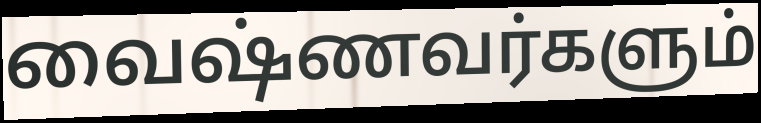
வைஷ்ணவர்களும்